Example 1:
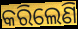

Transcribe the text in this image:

କରିଲେଣି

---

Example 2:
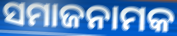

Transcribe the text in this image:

ସମାଜନାମକ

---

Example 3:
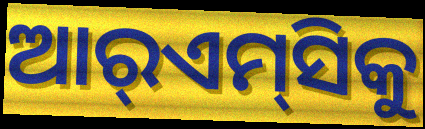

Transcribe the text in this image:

ଆର୍‌ଏମ୍‌ସିକୁ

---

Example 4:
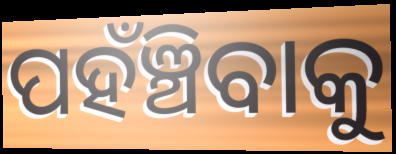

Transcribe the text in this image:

ପହଁଞ୍ଚିବାକୁ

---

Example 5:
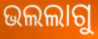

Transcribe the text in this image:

ଭଲଲାଗୁ